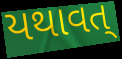
યથાવત્